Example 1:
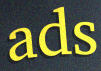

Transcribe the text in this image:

ads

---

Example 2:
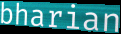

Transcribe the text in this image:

bharian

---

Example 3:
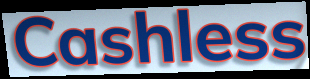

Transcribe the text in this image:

Cashless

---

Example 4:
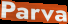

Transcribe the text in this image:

Parva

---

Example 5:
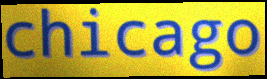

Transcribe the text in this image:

chicago